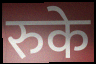
रुके